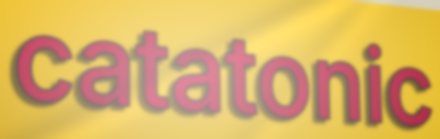
catatonic